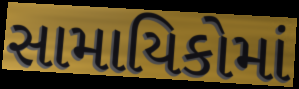
સામાયિકોમાં